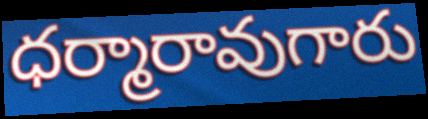
ధర్మారావుగారు